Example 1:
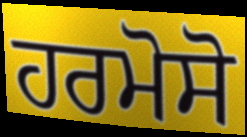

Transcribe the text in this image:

ਹਰਮੋਸੋ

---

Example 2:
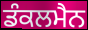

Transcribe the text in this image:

ਡੰਕਲਮੈਨ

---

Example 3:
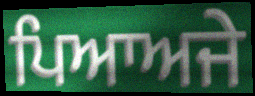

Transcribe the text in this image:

ਪਿਆਅਜੇ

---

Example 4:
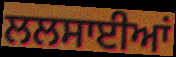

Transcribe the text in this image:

ਲਲਸਾਈਆਂ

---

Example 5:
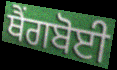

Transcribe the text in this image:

ਥੈਂਗਬੋਈ